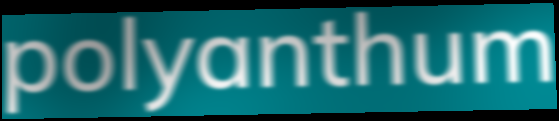
polyanthum